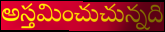
అస్తమించుచున్నది